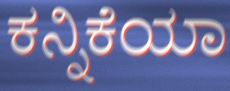
ಕನ್ನಿಕೆಯಾ